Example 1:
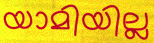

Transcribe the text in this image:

യാമിയില്ല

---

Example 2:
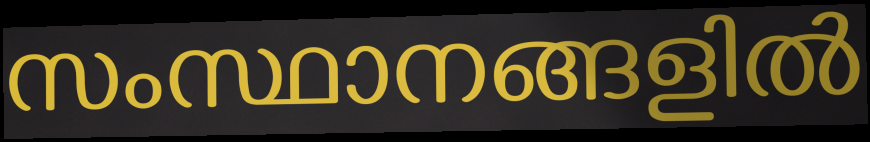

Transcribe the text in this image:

സംസ്ഥാനങ്ങളിൽ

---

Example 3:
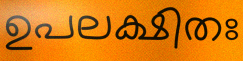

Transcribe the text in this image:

ഉപലക്ഷിതഃ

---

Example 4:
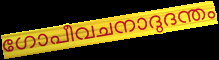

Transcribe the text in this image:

ഗോപീവചനാദുദന്തം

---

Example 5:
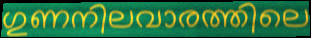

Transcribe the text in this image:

ഗുണനിലവാരത്തിലെ